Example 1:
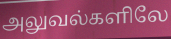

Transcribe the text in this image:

அலுவல்களிலே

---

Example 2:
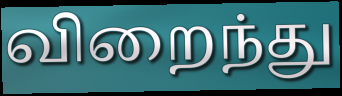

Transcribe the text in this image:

விறைந்து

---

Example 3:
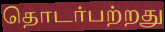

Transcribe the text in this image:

தொடர்பற்றது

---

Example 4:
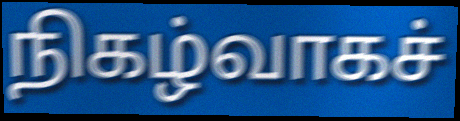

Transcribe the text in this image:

நிகழ்வாகச்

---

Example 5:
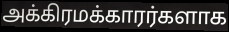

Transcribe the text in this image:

அக்கிரமக்காரர்களாக